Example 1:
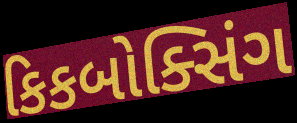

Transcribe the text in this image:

કિકબોક્સિંગ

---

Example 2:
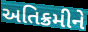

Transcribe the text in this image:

અતિક્રમીને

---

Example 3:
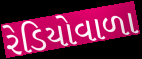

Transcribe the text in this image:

રેડિયોવાળા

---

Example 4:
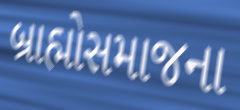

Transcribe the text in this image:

બ્રાહ્મોસમાજના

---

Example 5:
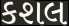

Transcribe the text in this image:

કશલ